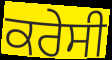
ਕਰੇਸੀ